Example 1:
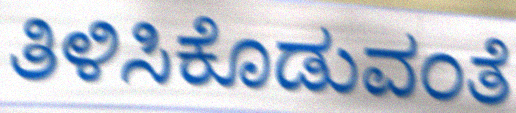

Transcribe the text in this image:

ತಿಳಿಸಿಕೊಡುವಂತೆ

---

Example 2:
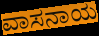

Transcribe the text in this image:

ವಾಸನಾಯ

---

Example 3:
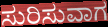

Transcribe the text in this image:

ಸುರಿಸುವಾಗ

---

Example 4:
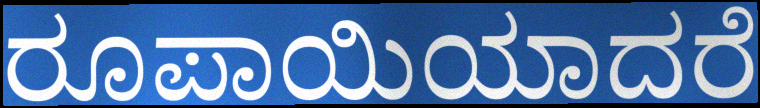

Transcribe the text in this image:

ರೂಪಾಯಿಯಾದರೆ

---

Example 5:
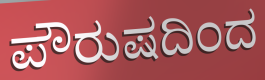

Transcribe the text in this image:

ಪೌರುಷದಿಂದ